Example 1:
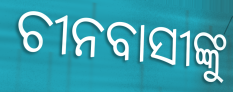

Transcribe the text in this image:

ଚୀନବାସୀଙ୍କୁ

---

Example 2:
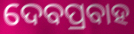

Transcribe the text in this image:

ଦେବପ୍ରବାହ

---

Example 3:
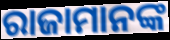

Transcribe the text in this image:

ରାଜାମାନଙ୍କ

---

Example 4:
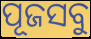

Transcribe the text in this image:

ପୂଜସବୁ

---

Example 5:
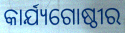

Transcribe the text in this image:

କାର୍ଯ୍ୟଗୋଷ୍ଠୀର